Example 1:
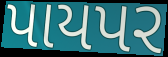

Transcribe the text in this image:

પાયપર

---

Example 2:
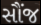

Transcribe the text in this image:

સૌંજ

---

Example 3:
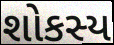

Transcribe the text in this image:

શોકસ્ય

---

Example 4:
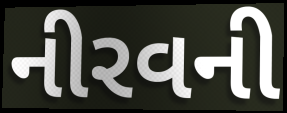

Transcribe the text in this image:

નીરવની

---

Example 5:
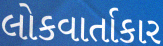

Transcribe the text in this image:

લોકવાર્તાકાર